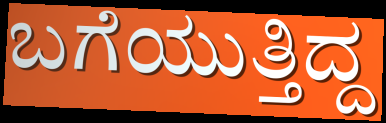
ಬಗೆಯುತ್ತಿದ್ದ